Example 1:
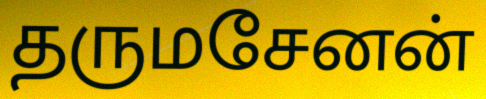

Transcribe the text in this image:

தருமசேனன்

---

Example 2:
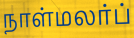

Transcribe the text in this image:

நாள்மலர்ப்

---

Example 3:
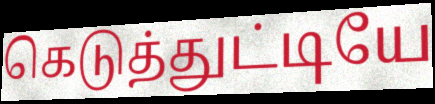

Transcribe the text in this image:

கெடுத்துட்டியே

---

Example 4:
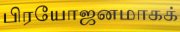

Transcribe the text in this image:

பிரயோஜனமாகக்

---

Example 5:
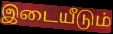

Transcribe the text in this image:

இடையீடும்